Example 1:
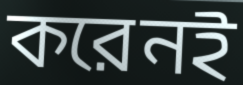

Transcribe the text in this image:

করেনই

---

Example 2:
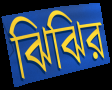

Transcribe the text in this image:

ঝিঝির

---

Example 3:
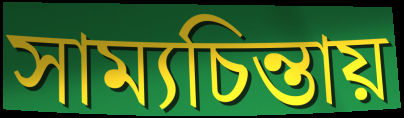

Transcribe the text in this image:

সাম্যচিন্তায়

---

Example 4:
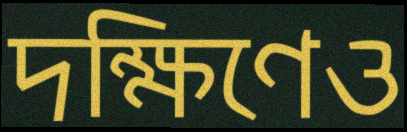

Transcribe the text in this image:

দক্ষিণেও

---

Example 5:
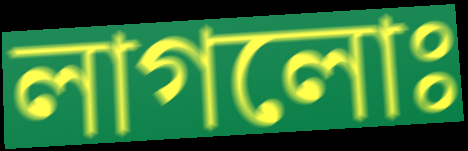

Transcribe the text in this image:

লাগলোঃ